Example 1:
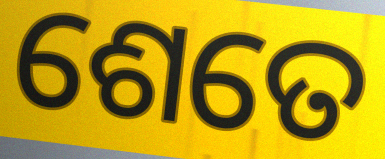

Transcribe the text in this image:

ଶେତେ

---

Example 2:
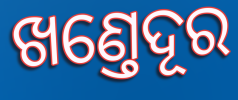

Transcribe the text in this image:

ଖଣ୍ତେଦୂର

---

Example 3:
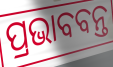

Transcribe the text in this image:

ପ୍ରଭାବବନ୍ତ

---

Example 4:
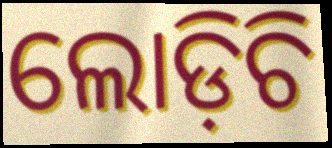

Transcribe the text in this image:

ଲୋଡ଼ିଚି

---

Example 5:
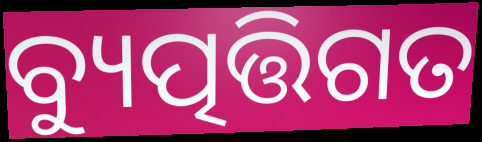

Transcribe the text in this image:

ବ୍ୟୁତ୍ପତ୍ତିଗତ